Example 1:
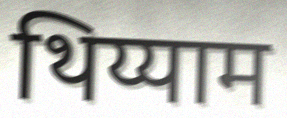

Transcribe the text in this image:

थिय्याम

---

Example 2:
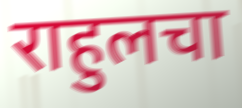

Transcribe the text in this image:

राहुलचा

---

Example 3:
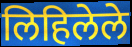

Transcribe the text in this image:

लिहिलेले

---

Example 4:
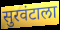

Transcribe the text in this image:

सुरवंटाला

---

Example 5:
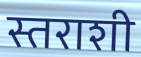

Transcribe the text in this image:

स्तराशी